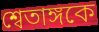
শ্বেতাঙ্গকে